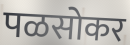
पळसोकर